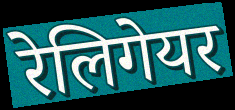
रेलिगेयर